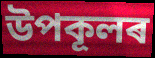
উপকূলৰ